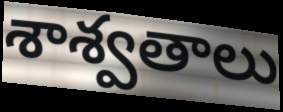
శాశ్వతాలు